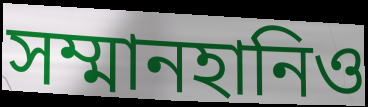
সম্মানহানিও